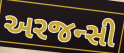
અરજન્સી